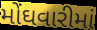
મોંઘવારીમાં